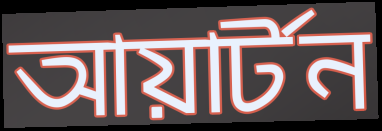
আয়ার্টন